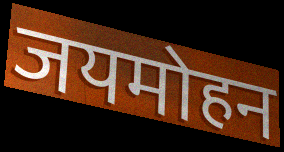
जयमोहन